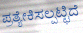
ಪ್ರತ್ಯೇಕಿಸಲ್ಪಟ್ಟಿದೆ